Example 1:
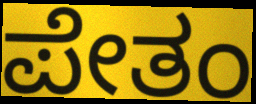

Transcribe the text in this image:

ಪೇತಂ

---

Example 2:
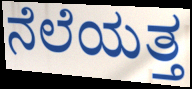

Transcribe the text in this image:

ನೆಲೆಯತ್ತ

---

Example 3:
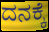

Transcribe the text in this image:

ದನಕ್ಕೆ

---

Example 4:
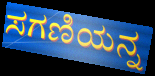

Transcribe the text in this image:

ಸಗಣಿಯನ್ನ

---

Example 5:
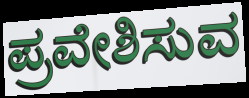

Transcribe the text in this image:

ಪ್ರವೇಶಿಸುವ